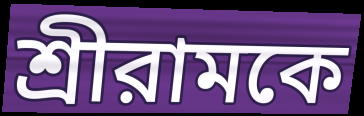
শ্রীরামকে